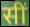
सीं